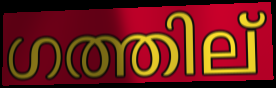
ഗത്തില്